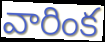
వారింక